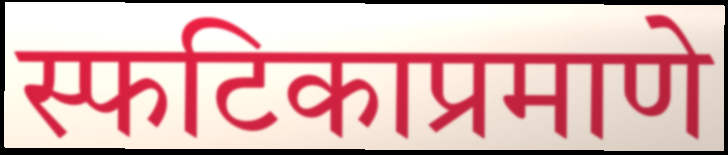
स्फटिकाप्रमाणे